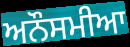
ਅਨੌਸਮੀਆ